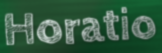
Horatio